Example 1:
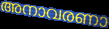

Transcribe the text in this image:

അനാവരണാ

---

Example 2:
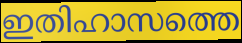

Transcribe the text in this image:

ഇതിഹാസത്തെ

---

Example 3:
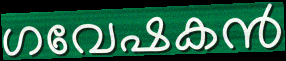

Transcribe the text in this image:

ഗവേഷകൻ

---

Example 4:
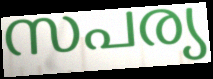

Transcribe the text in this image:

സപര്യ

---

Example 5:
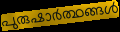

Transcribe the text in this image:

പുരുഷാർത്ഥങ്ങൾ